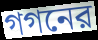
গগনের